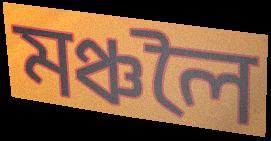
মঞ্চলৈ